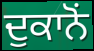
ਦੁਕਾਨੋਂ